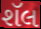
શૅલ